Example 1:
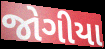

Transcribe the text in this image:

જોગીયા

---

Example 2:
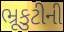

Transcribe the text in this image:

ભ્રૂકુટીની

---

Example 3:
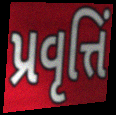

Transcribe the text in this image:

પ્રવૃત્તિં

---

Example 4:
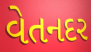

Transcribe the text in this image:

વેતનદર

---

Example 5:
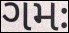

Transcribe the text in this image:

ગમઃ